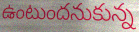
ఉంటుందనుకున్న